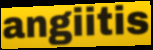
angiitis